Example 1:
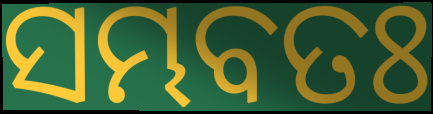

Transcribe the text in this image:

ସମ୍ଭବତଃ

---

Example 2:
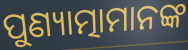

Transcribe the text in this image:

ପୁଣ୍ୟାତ୍ମାମାନଙ୍କ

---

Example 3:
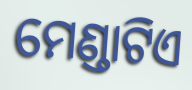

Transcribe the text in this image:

ମେଣ୍ଡାଟିଏ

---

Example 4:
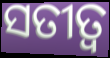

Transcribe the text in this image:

ସତୀତ୍ଵ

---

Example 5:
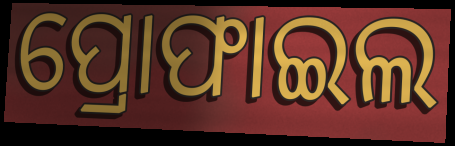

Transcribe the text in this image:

ପ୍ରୋଫାଇଲ